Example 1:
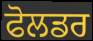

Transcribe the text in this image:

ਫੋਲਡਰ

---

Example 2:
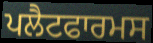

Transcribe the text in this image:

ਪਲੈਟਫਾਰਮਸ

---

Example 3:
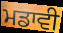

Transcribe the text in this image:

ਮਡਾਵੀ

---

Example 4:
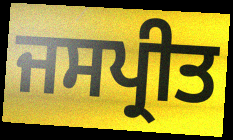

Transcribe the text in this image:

ਜਸਪ੍ਰੀਤ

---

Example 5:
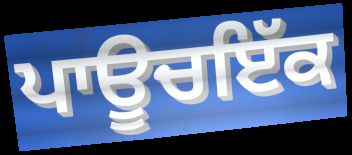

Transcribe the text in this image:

ਪਾਊਚਇੱਕ